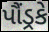
પૌંડ્રકે